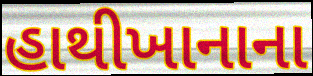
હાથીખાનાના